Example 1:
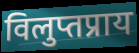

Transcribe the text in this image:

विलुप्तप्राय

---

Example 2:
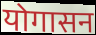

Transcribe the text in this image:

योगासन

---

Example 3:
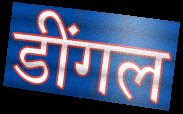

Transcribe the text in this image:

डींगल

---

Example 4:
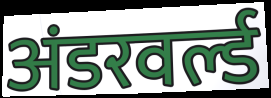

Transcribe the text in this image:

अंडरवर्ल्‍ड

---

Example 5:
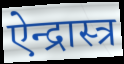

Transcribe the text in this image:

ऐन्द्रास्त्र